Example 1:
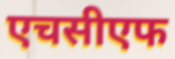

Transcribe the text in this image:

एचसीएफ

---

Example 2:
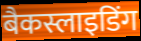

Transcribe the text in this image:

बैकस्लाइडिंग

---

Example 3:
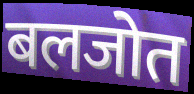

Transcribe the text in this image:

बलजोत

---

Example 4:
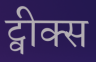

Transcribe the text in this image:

ट्वीक्स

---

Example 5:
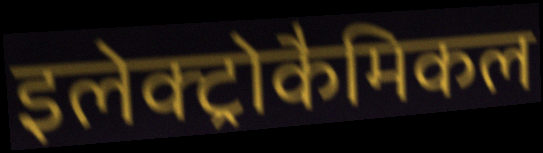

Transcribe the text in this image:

इलेक्ट्रोकैमिकल